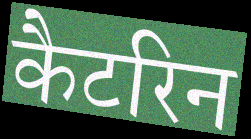
कैटरिन